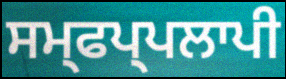
ਸਮ੍ਫਪ੍ਪਲਾਪੀ